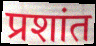
प्रशांत